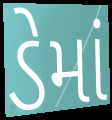
ડેમાં